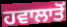
ਹਵਾਲਾਤੋਂ